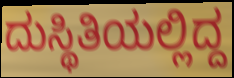
ದುಸ್ಥಿತಿಯಲ್ಲಿದ್ದ